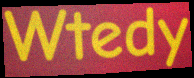
Wtedy